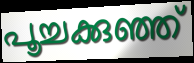
പൂച്ചക്കുഞ്ഞ്